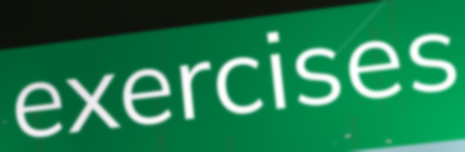
exercises